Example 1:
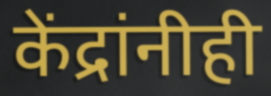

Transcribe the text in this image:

केंद्रांनीही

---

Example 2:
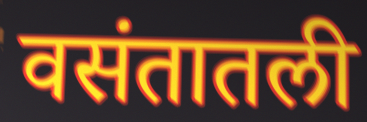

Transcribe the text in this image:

वसंतातली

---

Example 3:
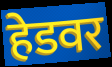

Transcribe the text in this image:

हेडवर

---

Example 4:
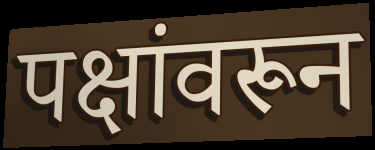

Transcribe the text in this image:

पक्षांवरून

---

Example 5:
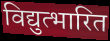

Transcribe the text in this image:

विद्युत्भारित